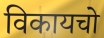
विकायचो